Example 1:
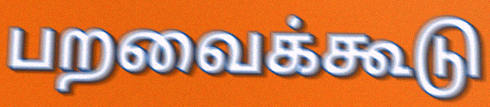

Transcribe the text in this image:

பறவைக்கூடு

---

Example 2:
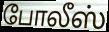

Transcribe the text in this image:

போலீஸ்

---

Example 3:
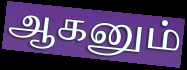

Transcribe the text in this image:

ஆகனும்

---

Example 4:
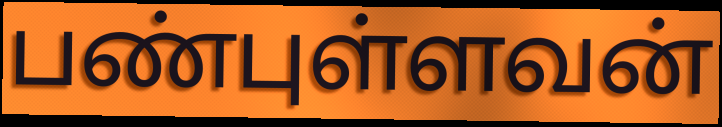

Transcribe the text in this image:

பண்புள்ளவன்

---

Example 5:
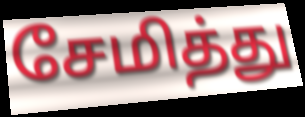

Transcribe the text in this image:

சேமித்து